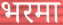
भरमा